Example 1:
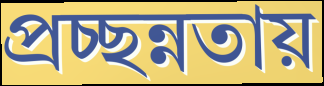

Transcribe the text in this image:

প্রচ্ছন্নতায়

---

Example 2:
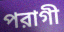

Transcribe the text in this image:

পরাগী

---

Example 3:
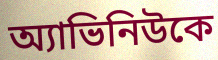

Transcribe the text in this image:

অ্যাভিনিউকে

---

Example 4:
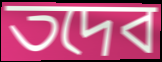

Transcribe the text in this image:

তদেব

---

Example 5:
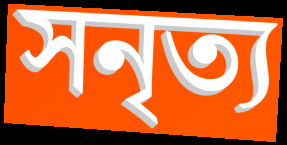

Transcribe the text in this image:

সনৃত্য